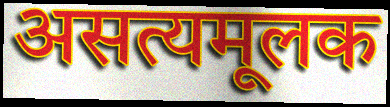
असत्यमूलक